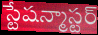
స్టేషన్మాస్టర్